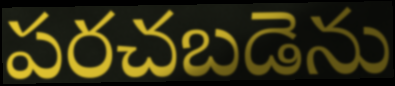
పరచబడెను